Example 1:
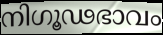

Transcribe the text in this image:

നിഗൂഢഭാവം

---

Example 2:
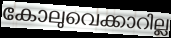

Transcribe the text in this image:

കോലുവെക്കാറില്ല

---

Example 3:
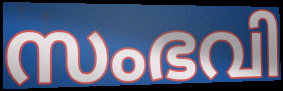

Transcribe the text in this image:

സംഭവി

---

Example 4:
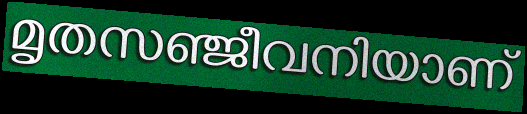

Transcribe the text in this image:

മൃതസഞ്ജീവനിയാണ്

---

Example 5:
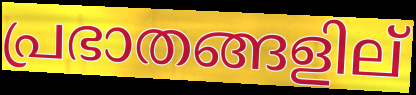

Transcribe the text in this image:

പ്രഭാതങ്ങളില്